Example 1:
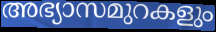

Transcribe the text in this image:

അഭ്യാസമുറകളും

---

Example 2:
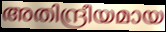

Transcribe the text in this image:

അതിന്ദ്രീയമായ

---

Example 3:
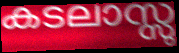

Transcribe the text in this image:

കടലാസ്സു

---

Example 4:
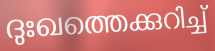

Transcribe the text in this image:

ദുഃഖത്തെക്കുറിച്ച്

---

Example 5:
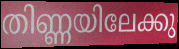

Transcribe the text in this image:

തിണ്ണയിലേക്കു